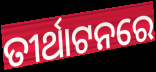
ତୀର୍ଥାଟନରେ